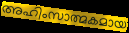
അഹിംസാത്മകമായ